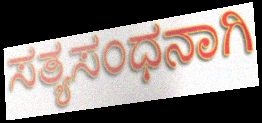
ಸತ್ಯಸಂಧನಾಗಿ